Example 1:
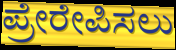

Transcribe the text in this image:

ಪ್ರೇರೇಪಿಸಲು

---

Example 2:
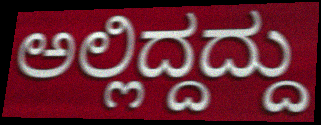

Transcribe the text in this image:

ಅಲ್ಲಿದ್ದದ್ದು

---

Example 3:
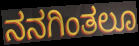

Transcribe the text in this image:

ನನಗಿಂತಲೂ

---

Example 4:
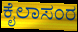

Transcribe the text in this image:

ಕೈಲಾಸಂರ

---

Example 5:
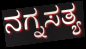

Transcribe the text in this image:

ನಗ್ನಸತ್ಯ